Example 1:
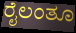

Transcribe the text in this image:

ರೈಲಂತೂ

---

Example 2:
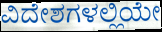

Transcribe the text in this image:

ವಿದೇಶಗಳಲ್ಲಿಯೇ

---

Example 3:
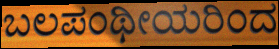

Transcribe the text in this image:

ಬಲಪಂಥೀಯರಿಂದ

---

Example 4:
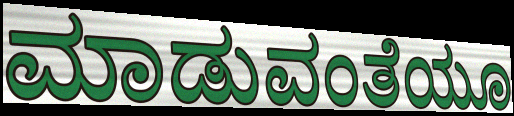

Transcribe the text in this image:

ಮಾಡುವಂತೆಯೂ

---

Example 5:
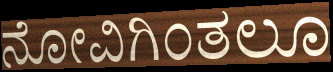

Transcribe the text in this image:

ನೋವಿಗಿಂತಲೂ